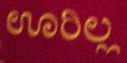
ಊರಿಲ್ಲ